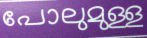
പോലുമുള്ള